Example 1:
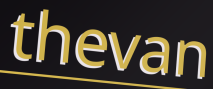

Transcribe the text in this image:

thevan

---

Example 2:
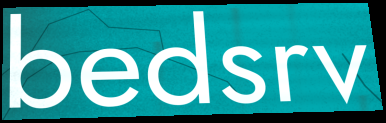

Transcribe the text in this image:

bedsrv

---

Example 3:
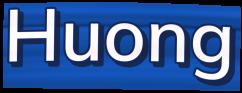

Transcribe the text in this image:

Huong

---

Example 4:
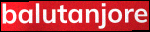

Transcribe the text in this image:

balutanjore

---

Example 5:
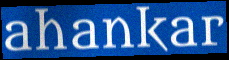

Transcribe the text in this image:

ahankar